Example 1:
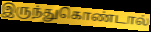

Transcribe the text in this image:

இருந்துகொண்டால்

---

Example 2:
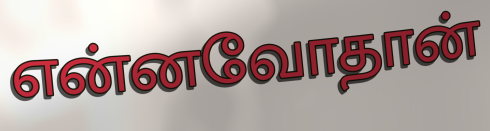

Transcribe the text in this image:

என்னவோதான்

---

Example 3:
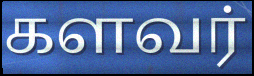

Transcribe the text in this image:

களவர்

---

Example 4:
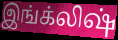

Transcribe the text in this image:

இங்க்லிஷ்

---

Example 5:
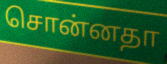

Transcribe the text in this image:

சொன்னதா